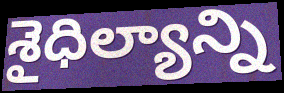
శైధిల్యాన్ని